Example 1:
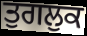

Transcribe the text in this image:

ਤੁਗਲੁਕ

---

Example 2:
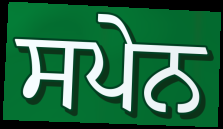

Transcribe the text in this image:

ਸਪੇਨ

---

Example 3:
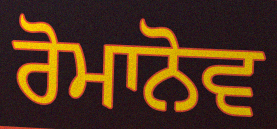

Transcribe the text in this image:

ਰੋਮਾਨੋਵ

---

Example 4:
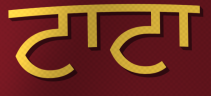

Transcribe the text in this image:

ਟਾਟਾ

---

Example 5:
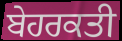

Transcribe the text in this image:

ਬੇਹਰਕਤੀ